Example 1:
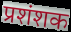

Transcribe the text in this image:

प्रशंशक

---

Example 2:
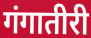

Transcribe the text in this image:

गंगातीरी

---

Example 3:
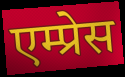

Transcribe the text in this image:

एम्प्रेस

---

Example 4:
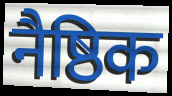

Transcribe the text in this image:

नैष्ठिक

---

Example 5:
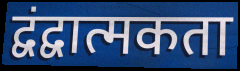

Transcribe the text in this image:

द्वंद्वात्मकता